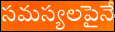
సమస్యలపైనే